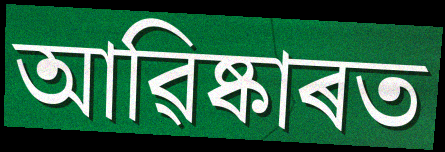
আৱিষ্কাৰত